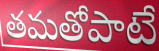
తమతోపాటే